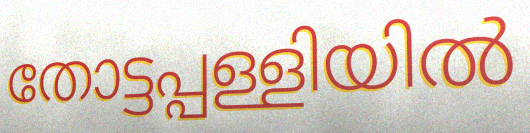
തോട്ടപ്പള്ളിയിൽ